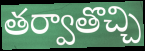
తర్వాతొచ్చి